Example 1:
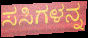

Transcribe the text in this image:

ಸಸಿಗಳನ್ನ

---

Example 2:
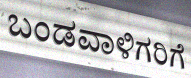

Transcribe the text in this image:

ಬಂಡವಾಳಿಗರಿಗೆ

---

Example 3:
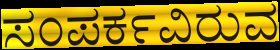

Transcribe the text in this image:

ಸಂಪರ್ಕವಿರುವ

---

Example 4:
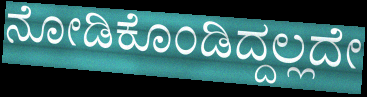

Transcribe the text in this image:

ನೋಡಿಕೊಂಡಿದ್ದಲ್ಲದೇ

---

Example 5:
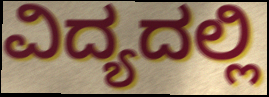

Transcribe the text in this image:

ವಿದ್ಯದಲ್ಲಿ